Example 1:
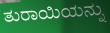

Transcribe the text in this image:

ತುರಾಯಿಯನ್ನು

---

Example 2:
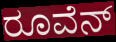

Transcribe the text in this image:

ರೂವೆನ್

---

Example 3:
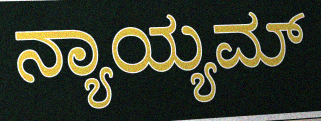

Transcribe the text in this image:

ನ್ಯಾಯ್ಯಮ್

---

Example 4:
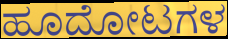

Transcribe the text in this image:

ಹೂದೋಟಗಳ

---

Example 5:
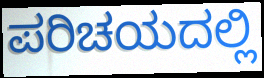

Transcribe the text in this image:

ಪರಿಚಯದಲ್ಲಿ